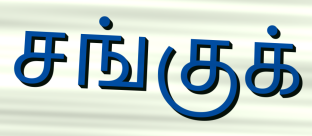
சங்குக்